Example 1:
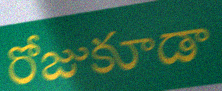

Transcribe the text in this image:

రోజుకూడా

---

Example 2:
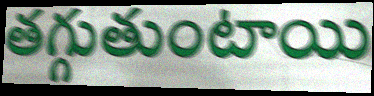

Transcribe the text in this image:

తగ్గుతుంటాయి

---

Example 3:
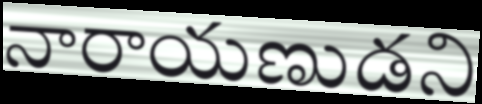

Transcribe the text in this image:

నారాయణుడని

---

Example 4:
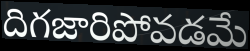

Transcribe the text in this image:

దిగజారిపోవడమే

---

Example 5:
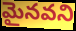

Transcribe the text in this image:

మైనవని